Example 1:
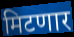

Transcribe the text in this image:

मिटणार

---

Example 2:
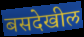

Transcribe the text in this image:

बसदेखील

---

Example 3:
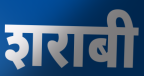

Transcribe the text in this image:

शराबी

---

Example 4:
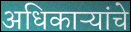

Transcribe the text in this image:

अधिकाऱ्यांचे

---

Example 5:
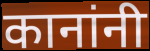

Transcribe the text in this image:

कानांनी